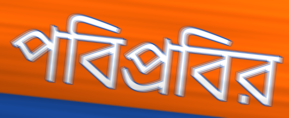
পবিপ্রবির